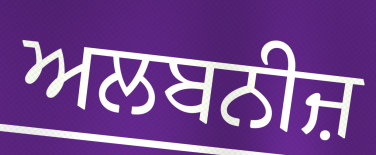
ਅਲਬਨੀਜ਼